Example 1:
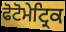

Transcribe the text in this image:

ਫੋਟੋਮੇਟ੍ਰਿਕ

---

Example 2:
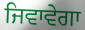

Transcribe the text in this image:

ਜਿਵਾਵੇਗਾ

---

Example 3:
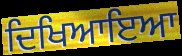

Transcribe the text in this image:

ਦਿਖਿਆਇਆ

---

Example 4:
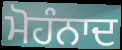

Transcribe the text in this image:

ਮੋਹੰਨਾਦ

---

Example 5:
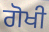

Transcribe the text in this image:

ਗੋਖੀ